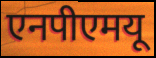
एनपीएमयू